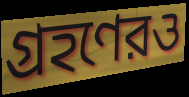
গ্রহণেরও